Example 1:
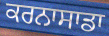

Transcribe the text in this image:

ਕਰਨਾਸਾਡਾ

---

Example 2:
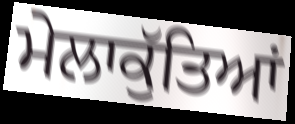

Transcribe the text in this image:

ਮੇਲਾਕੁੱਤਿਆਂ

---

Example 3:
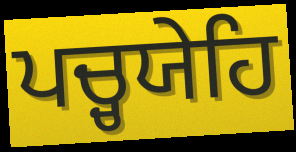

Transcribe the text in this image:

ਪਚ੍ਚਯੇਹਿ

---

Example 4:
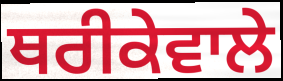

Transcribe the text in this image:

ਥਰੀਕੇਵਾਲੇ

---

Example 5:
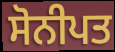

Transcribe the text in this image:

ਸੋਨੀਪਤ